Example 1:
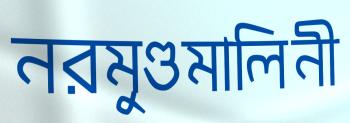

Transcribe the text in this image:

নরমুণ্ডমালিনী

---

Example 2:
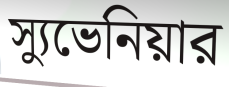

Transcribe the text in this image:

স্যুভেনিয়ার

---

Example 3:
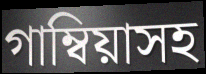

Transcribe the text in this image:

গাম্বিয়াসহ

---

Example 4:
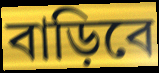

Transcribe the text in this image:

বাড়িবে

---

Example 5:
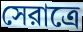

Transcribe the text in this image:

সেরাত্রে